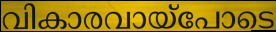
വികാരവായ്പോടെ